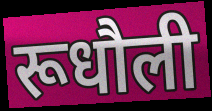
रूधौली